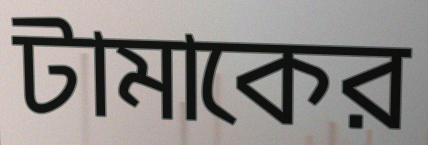
টামাকের